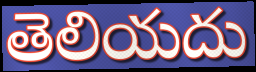
తెలియదు